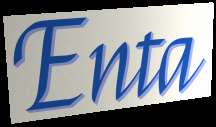
Enta